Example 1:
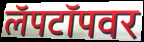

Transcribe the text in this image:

लॅपटॉपवर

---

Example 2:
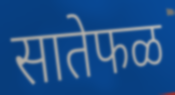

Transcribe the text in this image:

सातेफळ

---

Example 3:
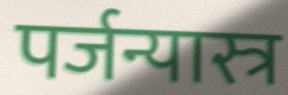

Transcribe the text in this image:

पर्जन्यास्त्र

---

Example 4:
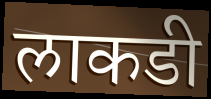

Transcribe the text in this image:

लाकडी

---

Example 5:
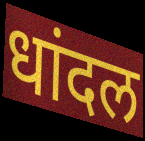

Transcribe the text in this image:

धांदल